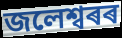
জলেশ্বৰৰ